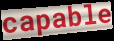
capable